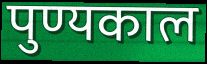
पुण्यकाल